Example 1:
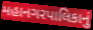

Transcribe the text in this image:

મહાનગરપાલિકાનું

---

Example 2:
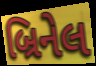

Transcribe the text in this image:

બ્રિનેલ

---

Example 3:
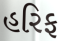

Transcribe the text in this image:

હરિફ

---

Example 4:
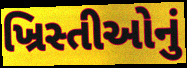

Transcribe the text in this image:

ખ્રિસ્તીઓનું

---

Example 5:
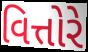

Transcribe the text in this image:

વિત્તોરે